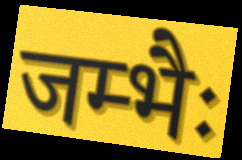
जम्भैः